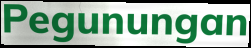
Pegunungan